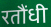
रतौंधी